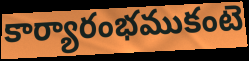
కార్యారంభముకంటె